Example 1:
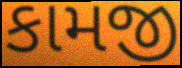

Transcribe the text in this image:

કામજી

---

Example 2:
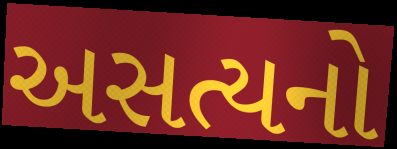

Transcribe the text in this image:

અસત્યનો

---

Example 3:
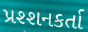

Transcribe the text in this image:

પ્રશ્શનકર્તા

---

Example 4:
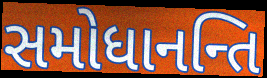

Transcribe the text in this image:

સમોધાનન્તિ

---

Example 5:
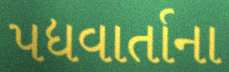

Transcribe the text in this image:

પદ્યવાર્તાના